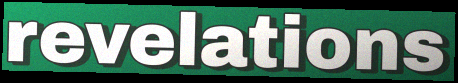
revelations